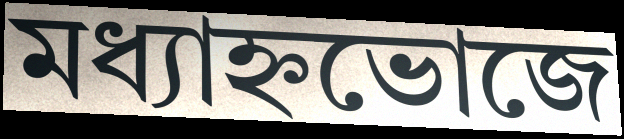
মধ্যাহ্নভোজে